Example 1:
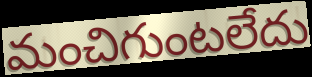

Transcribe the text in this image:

మంచిగుంటలేదు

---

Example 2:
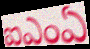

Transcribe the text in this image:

ఐఎంఏ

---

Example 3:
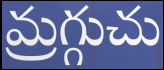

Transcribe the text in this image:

మ్రగ్గుచు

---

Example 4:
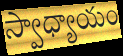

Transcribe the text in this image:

స్వాధ్యాయం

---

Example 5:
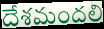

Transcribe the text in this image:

దేశమందలి